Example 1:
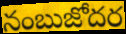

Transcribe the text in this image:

నంబుజోదర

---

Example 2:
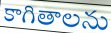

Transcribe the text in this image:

కాగితాలను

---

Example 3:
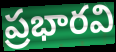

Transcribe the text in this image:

ప్రభారవి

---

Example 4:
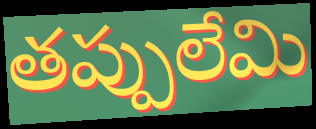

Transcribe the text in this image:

తప్పులేమి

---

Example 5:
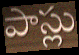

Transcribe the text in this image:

పాస్లు